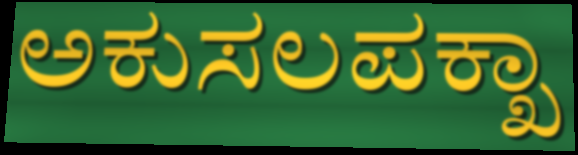
ಅಕುಸಲಪಕ್ಖಾ